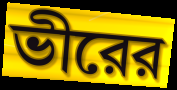
ভীরের